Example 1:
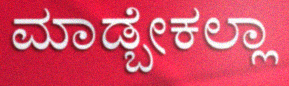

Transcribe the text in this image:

ಮಾಡ್ಬೇಕಲ್ಲಾ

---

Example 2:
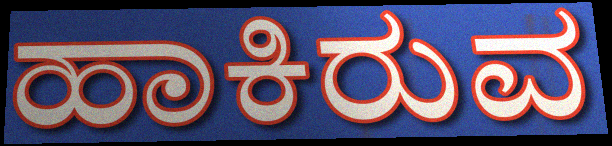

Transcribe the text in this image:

ಹಾಕಿರುವ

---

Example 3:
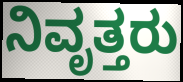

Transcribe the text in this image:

ನಿವೃತ್ತರು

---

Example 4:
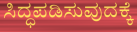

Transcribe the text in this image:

ಸಿದ್ಧಪಡಿಸುವುದಕ್ಕೆ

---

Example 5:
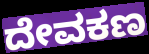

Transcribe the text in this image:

ದೇವಕಣ